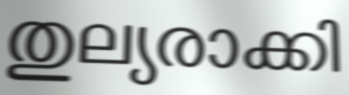
തുല്യരാക്കി